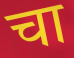
चा